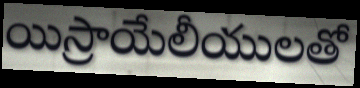
యిస్రాయేలీయులతో